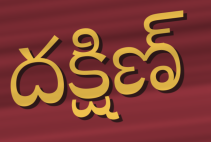
దక్షిణ్